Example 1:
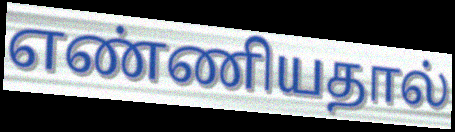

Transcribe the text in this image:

எண்ணியதால்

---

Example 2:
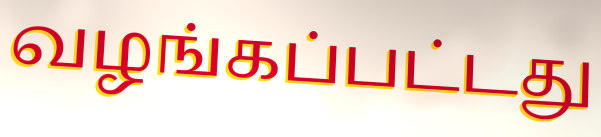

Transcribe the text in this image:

வழங்கப்பட்டது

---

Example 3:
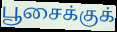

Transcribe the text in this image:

பூசைக்குக்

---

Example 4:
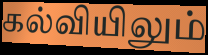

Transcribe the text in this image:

கல்வியிலும்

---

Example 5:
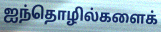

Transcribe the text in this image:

ஐந்தொழில்களைக்